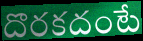
దొరకదంటే